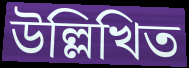
উল্লিখিত